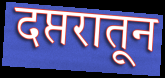
दप्तरातून